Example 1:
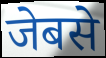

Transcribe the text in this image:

जेबसे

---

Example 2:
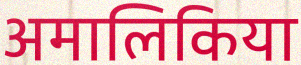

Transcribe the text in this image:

अमालिकिया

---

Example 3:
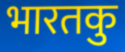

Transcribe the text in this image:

भारतकु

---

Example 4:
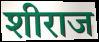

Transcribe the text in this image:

शीराज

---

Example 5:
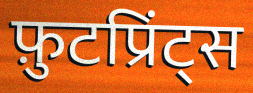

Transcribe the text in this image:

फ़ुटप्रिंट्स